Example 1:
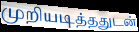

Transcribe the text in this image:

முறியடித்ததுடன்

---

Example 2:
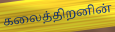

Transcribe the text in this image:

கலைத்திறனின்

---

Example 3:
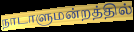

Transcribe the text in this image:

நாடாளுமன்றத்தில்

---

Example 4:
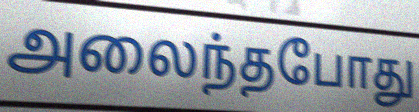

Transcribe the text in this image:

அலைந்தபோது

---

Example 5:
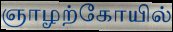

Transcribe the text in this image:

ஞாழற்கோயில்